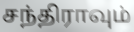
சந்திராவும்